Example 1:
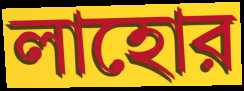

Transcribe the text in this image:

লাহোর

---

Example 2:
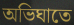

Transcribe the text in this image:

অভিঘাতে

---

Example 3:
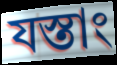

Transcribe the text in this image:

যস্তাং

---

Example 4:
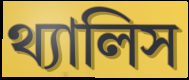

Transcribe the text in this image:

থ্যালিস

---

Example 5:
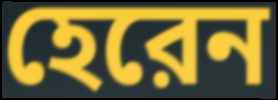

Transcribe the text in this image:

হেরেন